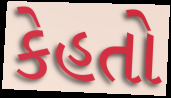
કેહતો